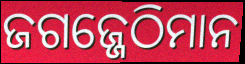
ଜଗଜ୍ଜେଠିମାନ